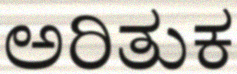
ಅರಿತುಕ